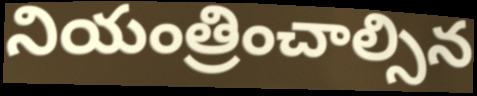
నియంత్రించాల్సిన